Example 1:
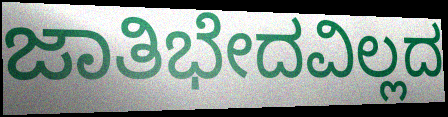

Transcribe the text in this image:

ಜಾತಿಭೇದವಿಲ್ಲದ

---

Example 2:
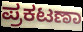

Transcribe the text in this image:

ಪ್ರಕಟಣಾ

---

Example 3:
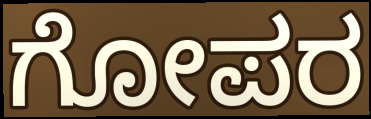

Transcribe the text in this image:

ಗೋಪರ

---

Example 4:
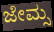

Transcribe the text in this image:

ಜೇಮ್ಸ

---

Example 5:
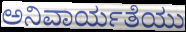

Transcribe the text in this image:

ಅನಿವಾರ್ಯತೆಯು